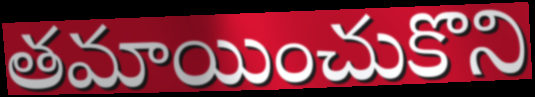
తమాయించుకొని